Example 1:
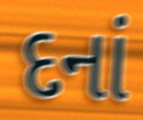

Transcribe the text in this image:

દનાં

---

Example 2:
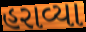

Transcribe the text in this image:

હરાવ્યા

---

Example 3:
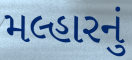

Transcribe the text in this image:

મલ્હારનું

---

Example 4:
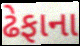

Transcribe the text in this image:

ઢેફાના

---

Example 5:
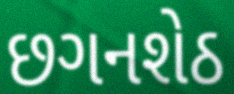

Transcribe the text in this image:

છગનશેઠ